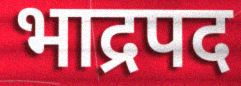
भाद्रपद